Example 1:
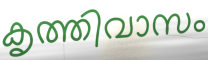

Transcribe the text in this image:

കൃത്തിവാസം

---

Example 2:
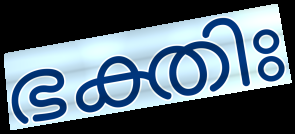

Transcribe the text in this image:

ഭക്തിഃ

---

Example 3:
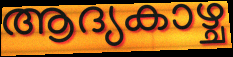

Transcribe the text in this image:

ആദ്യകാഴ്ച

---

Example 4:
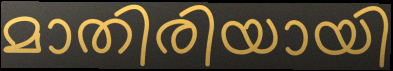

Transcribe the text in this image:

മാതിരിയായി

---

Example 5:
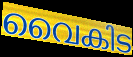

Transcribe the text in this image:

വൈകിട